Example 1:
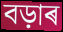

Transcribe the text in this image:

বড়াৰ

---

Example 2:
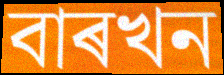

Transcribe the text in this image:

বাৰখন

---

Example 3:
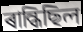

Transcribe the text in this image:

ৰান্ধিছিল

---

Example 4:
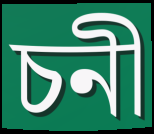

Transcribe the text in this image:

চনী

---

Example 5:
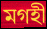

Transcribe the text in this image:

মগহী